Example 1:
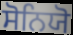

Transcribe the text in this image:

ਸੋਨਿਯੋ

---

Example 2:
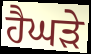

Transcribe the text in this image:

ਹੈਘੜੇ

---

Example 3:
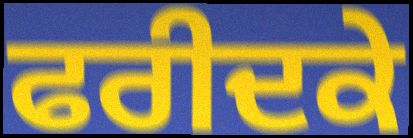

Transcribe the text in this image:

ਫਰੀਦਕੇ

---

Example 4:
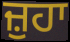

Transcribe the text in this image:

ਜ਼ੁਹਾ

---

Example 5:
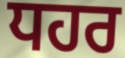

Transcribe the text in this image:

ਧਹਰ